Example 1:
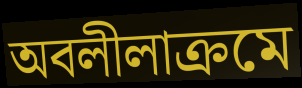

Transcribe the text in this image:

অবলীলাক্রমে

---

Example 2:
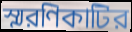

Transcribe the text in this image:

স্মরণিকাটির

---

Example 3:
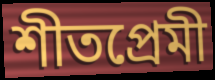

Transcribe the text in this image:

শীতপ্রেমী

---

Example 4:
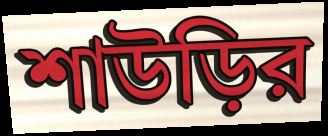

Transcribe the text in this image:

শাউড়ির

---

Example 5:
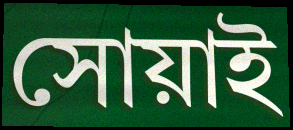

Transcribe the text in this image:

সোয়াই